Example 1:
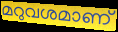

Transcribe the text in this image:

മറുവശമാണ്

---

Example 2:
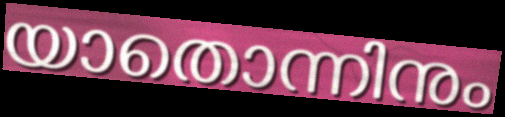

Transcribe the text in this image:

യാതൊന്നിനും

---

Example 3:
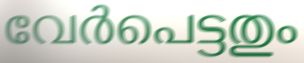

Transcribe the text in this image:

വേർപെട്ടതും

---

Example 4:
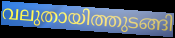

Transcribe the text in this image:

വലുതായിത്തുടങ്ങി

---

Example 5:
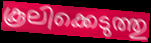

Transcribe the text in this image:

കൂലിക്കെടുത്തു